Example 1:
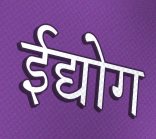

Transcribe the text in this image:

ईद्योग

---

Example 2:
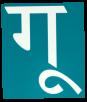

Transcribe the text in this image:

गू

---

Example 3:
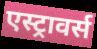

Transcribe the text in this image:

एस्ट्रावर्स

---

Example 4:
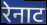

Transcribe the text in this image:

रेनाट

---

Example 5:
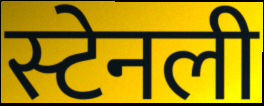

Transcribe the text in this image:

स्‍टेनली